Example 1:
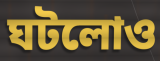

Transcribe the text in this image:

ঘটলোও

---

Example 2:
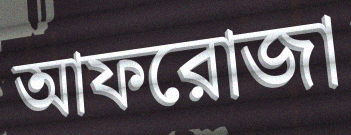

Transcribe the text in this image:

আফরোজা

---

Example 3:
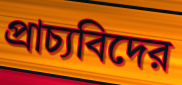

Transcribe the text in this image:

প্রাচ্যবিদের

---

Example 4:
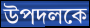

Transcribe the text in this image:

উপদলকে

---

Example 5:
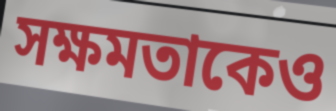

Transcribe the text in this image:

সক্ষমতাকেও